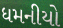
ધમનીયો